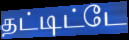
தட்டிட்டே